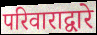
परिवाराद्वारे